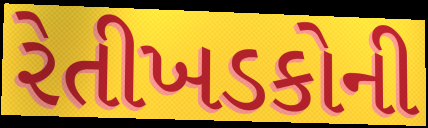
રેતીખડકોની